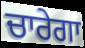
ਚਾਰੇਗਾ